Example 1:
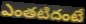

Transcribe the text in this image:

ఎంతటిదంటే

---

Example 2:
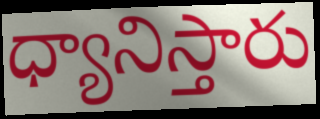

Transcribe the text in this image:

ధ్యానిస్తారు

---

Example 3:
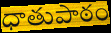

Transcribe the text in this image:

ధాతుపాఠం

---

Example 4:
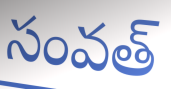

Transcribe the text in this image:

సంవత్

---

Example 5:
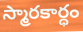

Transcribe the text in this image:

స్మారకార్ధం